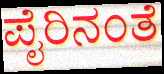
ಪೈರಿನಂತೆ